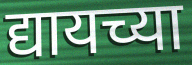
द्यायच्या